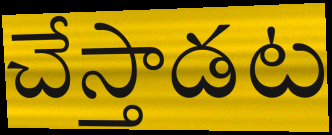
చేస్తాడట